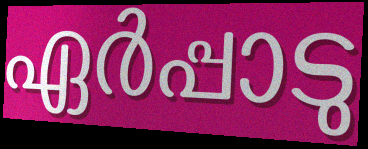
ഏർപ്പാടു